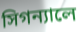
সিগন্যালে